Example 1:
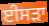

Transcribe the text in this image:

ਈਸੜਾ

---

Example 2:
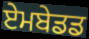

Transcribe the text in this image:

ਏਮਬੇਡਡ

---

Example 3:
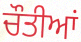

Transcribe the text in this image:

ਚੌਤੀਆਂ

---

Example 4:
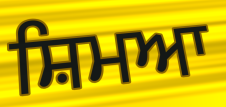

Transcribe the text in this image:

ਸ਼ਿਮਆ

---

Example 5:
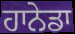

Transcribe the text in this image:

ਹਾਨੇਡਾ